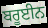
ਬਰੂਈਨ